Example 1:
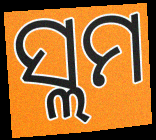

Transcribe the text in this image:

ସ୍ଲମ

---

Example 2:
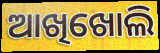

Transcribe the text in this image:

ଆଖିଖୋଲି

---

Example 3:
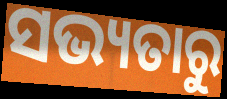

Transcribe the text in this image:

ସଭ୍ୟତାରୁ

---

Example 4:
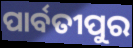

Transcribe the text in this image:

ପାର୍ବତୀପୁର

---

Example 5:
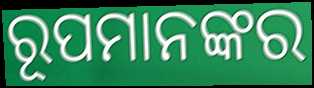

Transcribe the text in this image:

ରୂପମାନଙ୍କର